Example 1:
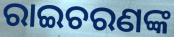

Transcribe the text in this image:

ରାଇଚରଣଙ୍କ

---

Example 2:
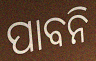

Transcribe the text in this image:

ପାବନି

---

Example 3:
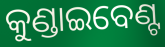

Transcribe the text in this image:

କୁଣ୍ଡାଇବେଣ୍ଟ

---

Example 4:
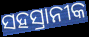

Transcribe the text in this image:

ସହସ୍ରାନୀକ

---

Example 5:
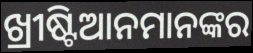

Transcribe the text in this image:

ଖ୍ରୀଷ୍ଟିଆନମାନଙ୍କର